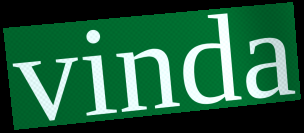
vinda